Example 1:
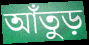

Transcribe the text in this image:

আঁতুড়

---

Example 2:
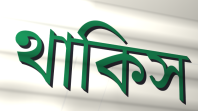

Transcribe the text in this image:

থাকিস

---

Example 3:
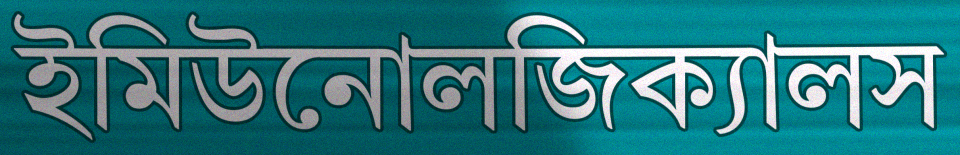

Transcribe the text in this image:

ইমিউনোলজিক্যালস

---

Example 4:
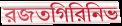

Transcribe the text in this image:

রজতগিরিনিভ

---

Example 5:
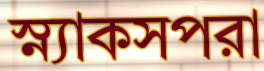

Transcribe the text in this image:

স্ন্যাকসপরা